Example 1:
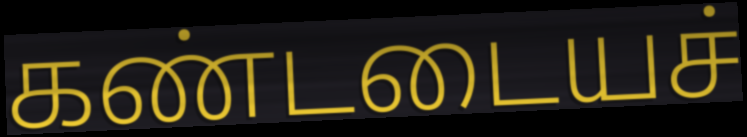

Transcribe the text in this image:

கண்டடையச்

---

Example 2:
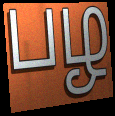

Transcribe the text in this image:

பழ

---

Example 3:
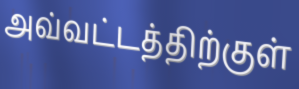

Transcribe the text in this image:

அவ்வட்டத்திற்குள்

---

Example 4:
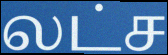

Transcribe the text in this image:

லட்ச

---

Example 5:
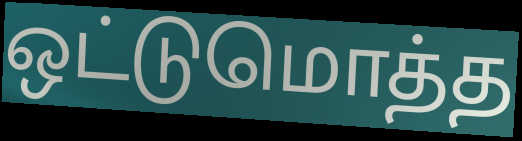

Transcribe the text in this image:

ஒட்டுமொத்த